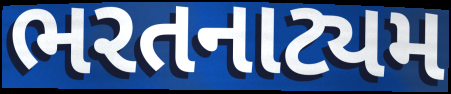
ભરતનાટ્યમ